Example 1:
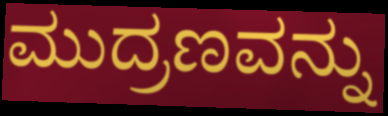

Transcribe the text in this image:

ಮುದ್ರಣವನ್ನು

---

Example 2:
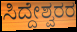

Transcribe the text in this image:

ಸಿದ್ದೇಶ್ವರರ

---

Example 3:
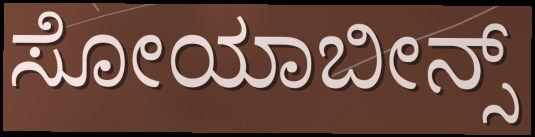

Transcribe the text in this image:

ಸೋಯಾಬೀನ್ಸ್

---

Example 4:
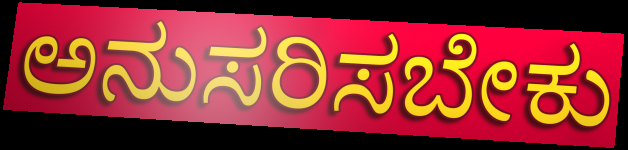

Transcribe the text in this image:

ಅನುಸರಿಸಬೇಕು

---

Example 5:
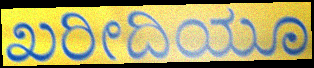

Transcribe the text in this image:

ಖರೀದಿಯೂ